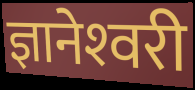
ज्ञानेश्‍वरी